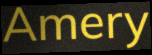
Amery